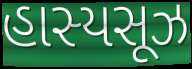
હાસ્યસૂઝ